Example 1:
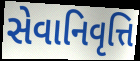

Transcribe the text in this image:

સેવાનિવૃત્તિ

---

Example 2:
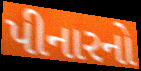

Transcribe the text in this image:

પીનારનો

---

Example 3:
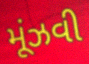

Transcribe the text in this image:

મૂંઝવી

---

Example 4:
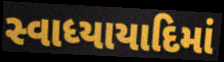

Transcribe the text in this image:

સ્વાધ્યાયાદિમાં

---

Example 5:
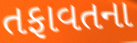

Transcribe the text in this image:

તફાવતના